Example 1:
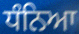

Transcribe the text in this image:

ਧੰਨਿਆ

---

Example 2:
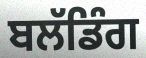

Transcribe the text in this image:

ਬਲੱਡਿੰਗ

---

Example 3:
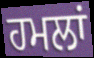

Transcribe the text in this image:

ਹਮਲਾਂ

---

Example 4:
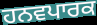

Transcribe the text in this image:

ਹਨਵਪਾਰਕ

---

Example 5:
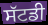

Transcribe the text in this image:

ਸੱਟਡੀ